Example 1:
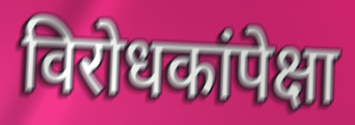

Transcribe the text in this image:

विरोधकांपेक्षा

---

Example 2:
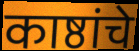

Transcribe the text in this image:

काष्ठांचे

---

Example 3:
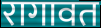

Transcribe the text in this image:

रागावत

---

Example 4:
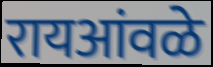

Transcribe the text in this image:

रायआंवळे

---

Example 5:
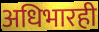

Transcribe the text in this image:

अधिभारही